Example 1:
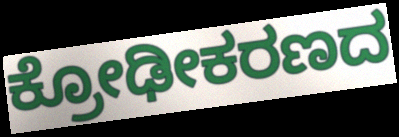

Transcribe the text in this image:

ಕ್ರೋಢೀಕರಣದ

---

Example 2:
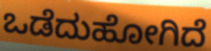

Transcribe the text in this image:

ಒಡೆದುಹೋಗಿದೆ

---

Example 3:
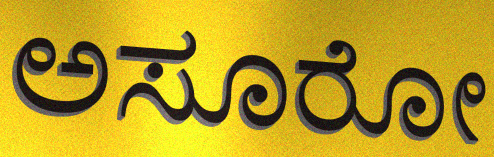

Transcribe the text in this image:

ಅಸೂರೋ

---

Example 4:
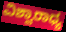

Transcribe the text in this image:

ವಿಶ್ವಾರಾಧ್ಯ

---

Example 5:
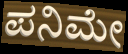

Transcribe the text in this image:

ಪನಿಮೇ